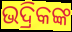
ଭଦ୍ରିକଙ୍କ